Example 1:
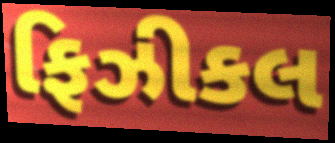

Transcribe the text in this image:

ફિઝીકલ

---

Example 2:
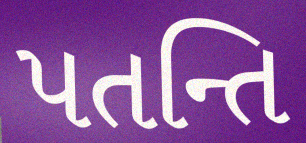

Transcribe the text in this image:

પતન્તિ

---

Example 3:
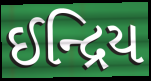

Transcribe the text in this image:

ઈન્દ્રિય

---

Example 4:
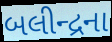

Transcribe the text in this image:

બલીન્દ્રના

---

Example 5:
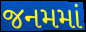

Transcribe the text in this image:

જનમમાં